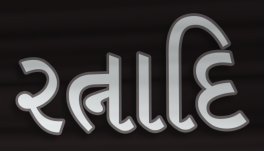
રત્નાદિ